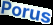
Porus